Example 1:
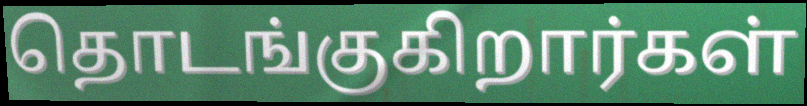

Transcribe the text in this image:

தொடங்குகிறார்கள்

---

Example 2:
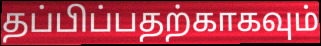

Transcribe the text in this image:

தப்பிப்பதற்காகவும்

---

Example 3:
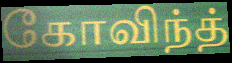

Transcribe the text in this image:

கோவிந்த்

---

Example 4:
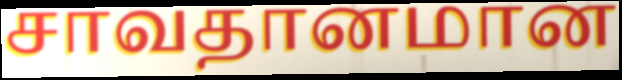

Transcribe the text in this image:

சாவதானமான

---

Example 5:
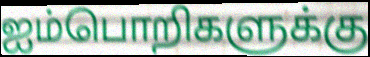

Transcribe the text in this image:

ஐம்பொறிகளுக்கு